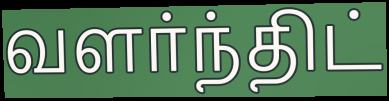
வளர்ந்திட்